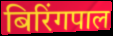
बिरिंगपाल